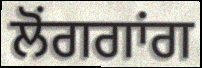
ਲੋਂਗਗਾਂਗ